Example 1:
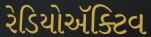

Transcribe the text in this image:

રેડિયોઍક્ટિવ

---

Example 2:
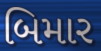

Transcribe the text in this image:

બિમાર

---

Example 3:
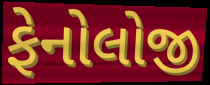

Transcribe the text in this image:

ફેનોલોજી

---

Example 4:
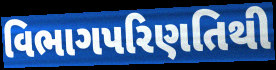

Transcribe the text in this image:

વિભાગપરિણતિથી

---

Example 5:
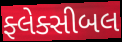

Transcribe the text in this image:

ફ્લેક્સીબલ